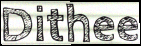
Dithee